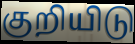
குறியிடு